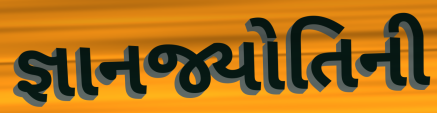
જ્ઞાનજ્યોતિની